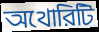
অথোরিটি